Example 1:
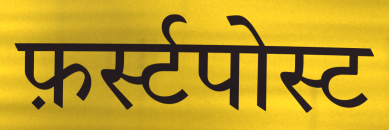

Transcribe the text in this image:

फ़र्स्टपोस्ट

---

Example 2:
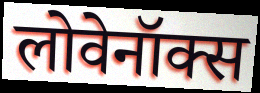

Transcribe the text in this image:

लोवेनॉक्स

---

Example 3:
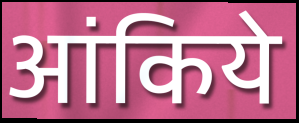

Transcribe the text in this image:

आंकिये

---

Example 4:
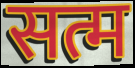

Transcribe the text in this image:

सत्म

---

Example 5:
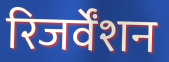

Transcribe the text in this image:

रिजर्वेंशन